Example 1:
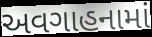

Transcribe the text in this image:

અવગાહનામાં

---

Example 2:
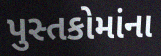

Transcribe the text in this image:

પુસ્તકોમાંના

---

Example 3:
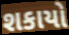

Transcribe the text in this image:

શકાયો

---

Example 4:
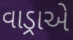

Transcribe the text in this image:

વાડ્રાએ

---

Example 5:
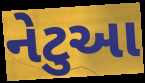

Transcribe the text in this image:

નેટુઆ